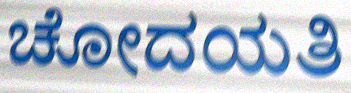
ಚೋದಯತಿ